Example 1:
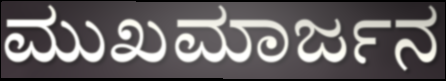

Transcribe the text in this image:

ಮುಖಮಾರ್ಜನ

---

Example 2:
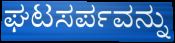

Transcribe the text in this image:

ಘಟಸರ್ಪವನ್ನು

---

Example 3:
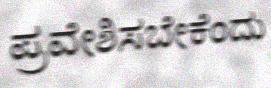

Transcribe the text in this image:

ಪ್ರವೇಶಿಸಬೇಕೆಂದು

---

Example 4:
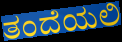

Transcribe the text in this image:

ತಂದೆಯಲಿ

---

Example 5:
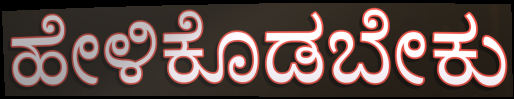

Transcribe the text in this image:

ಹೇಳಿಕೊಡಬೇಕು